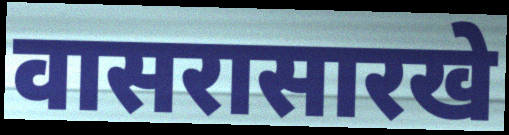
वासरासारखे